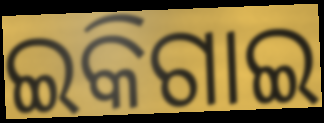
ଇକିଗାଇ